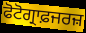
ਫੋਟੋਗ੍ਰਾਫ਼ਜਰਜ਼